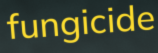
fungicide